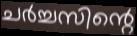
ചർച്ചസിന്റെ